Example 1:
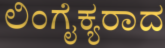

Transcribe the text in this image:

ಲಿಂಗೈಕ್ಯರಾದ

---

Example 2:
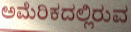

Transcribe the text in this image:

ಅಮೆರಿಕದಲ್ಲಿರುವ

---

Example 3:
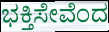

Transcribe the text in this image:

ಭಕ್ತಿಸೇವೆಂದ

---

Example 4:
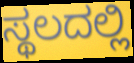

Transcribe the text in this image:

ಸ್ಥಲದಲ್ಲಿ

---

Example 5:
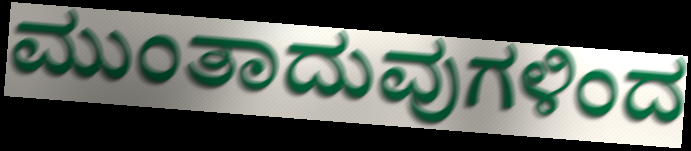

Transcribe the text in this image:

ಮುಂತಾದುವುಗಳಿಂದ